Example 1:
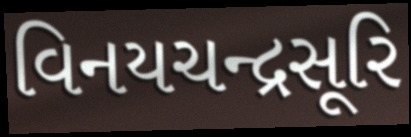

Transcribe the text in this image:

વિનયચન્દ્રસૂરિ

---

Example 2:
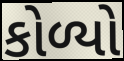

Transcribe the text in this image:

કોળ્યો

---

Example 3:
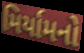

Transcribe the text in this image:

મિર્યામનો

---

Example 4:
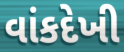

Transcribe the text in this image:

વાંકદેખી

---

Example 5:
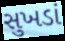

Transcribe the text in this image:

સુખડાં